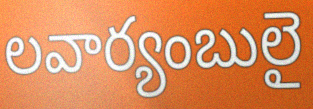
లవార్యంబులై